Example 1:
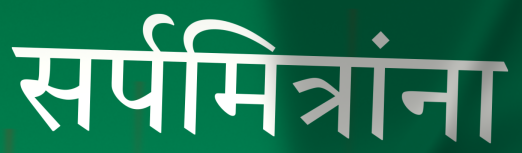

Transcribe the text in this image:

सर्पमित्रांना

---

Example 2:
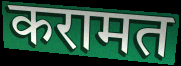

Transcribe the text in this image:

करामत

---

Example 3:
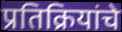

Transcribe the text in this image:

प्रतिक्रियांचे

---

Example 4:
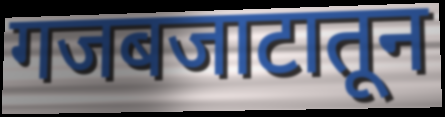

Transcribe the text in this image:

गजबजाटातून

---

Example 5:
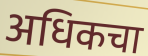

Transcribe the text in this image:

अधिकचा